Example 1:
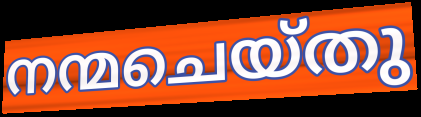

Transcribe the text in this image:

നന്മചെയ്തു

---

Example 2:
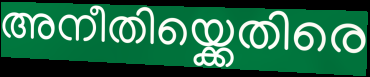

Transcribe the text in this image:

അനീതിയ്ക്കെതിരെ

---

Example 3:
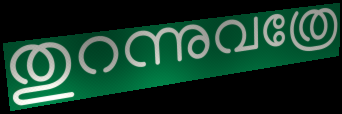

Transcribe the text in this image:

തുറന്നുവത്രേ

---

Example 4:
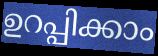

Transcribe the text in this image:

ഉറപ്പിക്കാം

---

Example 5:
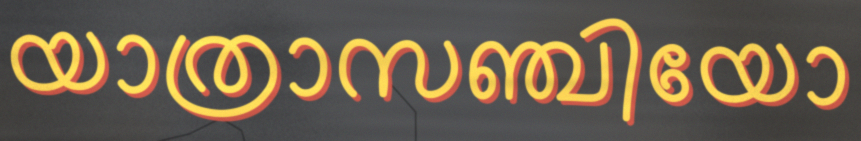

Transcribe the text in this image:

യാത്രാസഞ്ചിയോ